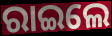
ରାଇଲେ